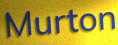
Murton